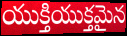
యుక్తియుక్తమైన